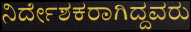
ನಿರ್ದೇಶಕರಾಗಿದ್ದವರು